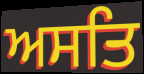
ਅਸਤਿ